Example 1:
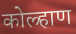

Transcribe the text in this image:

कोल्हाण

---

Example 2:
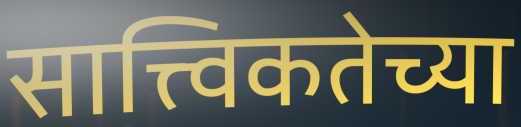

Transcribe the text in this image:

सात्त्विकतेच्या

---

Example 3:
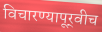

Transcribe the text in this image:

विचारण्यापूर्वीच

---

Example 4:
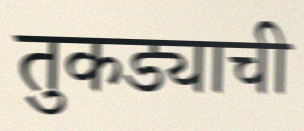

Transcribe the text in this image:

तुकड्याची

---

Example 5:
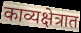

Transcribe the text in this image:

काव्यक्षेत्रात